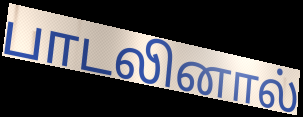
பாடலினால்